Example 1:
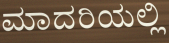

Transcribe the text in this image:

ಮಾದರಿಯಲ್ಲಿ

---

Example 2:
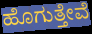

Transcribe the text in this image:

ಹೊಗುತ್ತೇವೆ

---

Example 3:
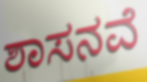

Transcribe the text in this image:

ಶಾಸನವೆ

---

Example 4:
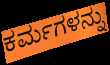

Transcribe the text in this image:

ಕರ್ಮಗಳನ್ನು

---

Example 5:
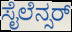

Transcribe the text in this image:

ಸೈಲೆನ್ಸರ್